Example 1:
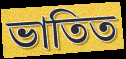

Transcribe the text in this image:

ভাতিত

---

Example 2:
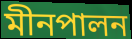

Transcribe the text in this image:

মীনপালন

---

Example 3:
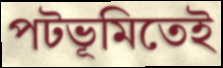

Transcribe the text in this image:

পটভূমিতেই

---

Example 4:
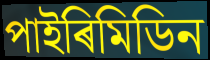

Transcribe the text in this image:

পাইৰিমিডিন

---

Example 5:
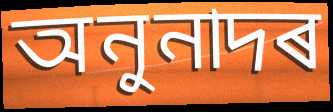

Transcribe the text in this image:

অনুনাদৰ